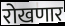
रोखणार